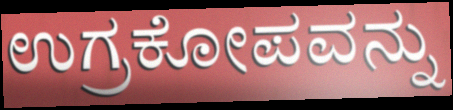
ಉಗ್ರಕೋಪವನ್ನು